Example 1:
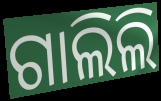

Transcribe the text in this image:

ଗାଲିଲି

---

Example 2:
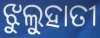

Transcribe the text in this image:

ଝୁଲୁହାତୀ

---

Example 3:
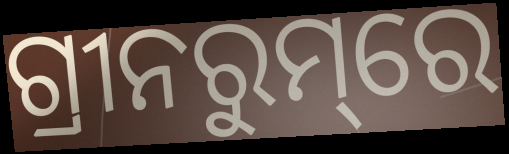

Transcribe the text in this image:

ଗ୍ରୀନରୁମ୍‌ରେ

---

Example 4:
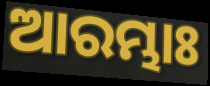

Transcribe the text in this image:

ଆରମ୍ଭାଃ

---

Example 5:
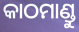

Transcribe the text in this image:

କାଠମାଣ୍ଡୁ